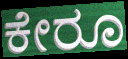
ಕೇರೂ